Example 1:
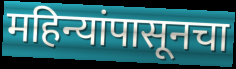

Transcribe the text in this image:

महिन्यांपासूनचा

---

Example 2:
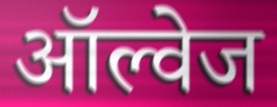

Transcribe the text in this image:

ऑल्वेज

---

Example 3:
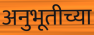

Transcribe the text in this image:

अनुभूतीच्या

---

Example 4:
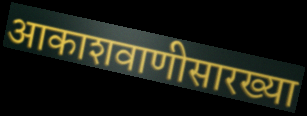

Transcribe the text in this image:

आकाशवाणीसारख्या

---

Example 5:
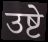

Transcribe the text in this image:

उष्टे